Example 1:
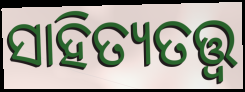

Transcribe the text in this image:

ସାହିତ୍ୟତତ୍ତ୍ୱ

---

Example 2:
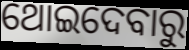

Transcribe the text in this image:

ଥୋଇଦେବାରୁ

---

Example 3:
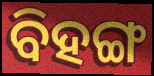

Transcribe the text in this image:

ବିହଙ୍ଗ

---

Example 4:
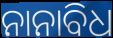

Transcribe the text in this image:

ନାନାବିଧ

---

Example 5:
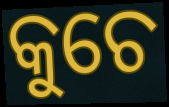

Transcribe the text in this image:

କୁଚେ